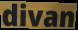
divan